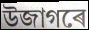
উজাগৰে